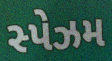
સ્પેઝમ